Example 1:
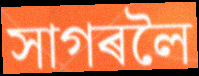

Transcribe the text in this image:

সাগৰলৈ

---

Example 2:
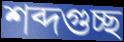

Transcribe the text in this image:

শব্দগুচ্ছ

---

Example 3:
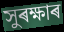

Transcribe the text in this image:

সুৰক্ষাৰ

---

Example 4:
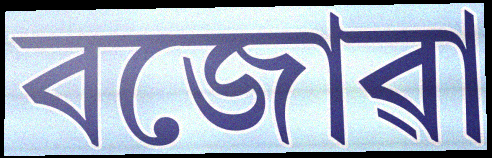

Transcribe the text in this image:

বজোৱা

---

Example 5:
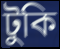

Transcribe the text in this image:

টুকি